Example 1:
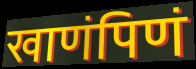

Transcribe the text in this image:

खाणंपिणं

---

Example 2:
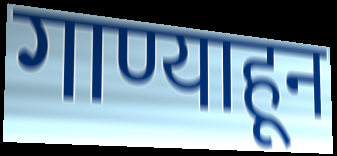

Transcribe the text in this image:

गाण्याहून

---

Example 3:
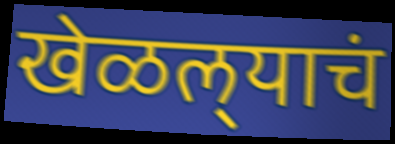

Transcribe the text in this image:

खेळल्याचं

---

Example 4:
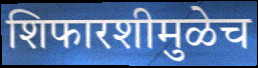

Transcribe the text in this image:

शिफारशीमुळेच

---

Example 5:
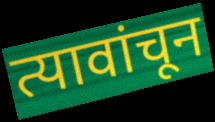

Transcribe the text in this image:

त्यावांचून